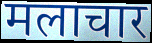
मलाचार